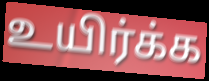
உயிர்க்க